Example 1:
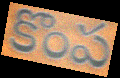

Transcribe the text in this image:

కొంప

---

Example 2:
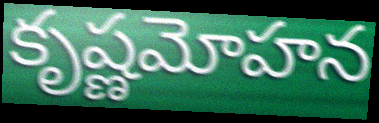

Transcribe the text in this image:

కృష్ణమోహన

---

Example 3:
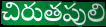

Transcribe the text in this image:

చిరుతపులి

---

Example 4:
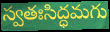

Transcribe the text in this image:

స్వతఃసిద్ధమగు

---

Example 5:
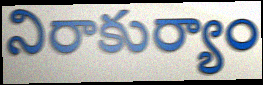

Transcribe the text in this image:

నిరాకుర్యాం